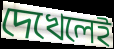
দেখেলেই